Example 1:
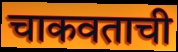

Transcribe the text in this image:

चाकवताची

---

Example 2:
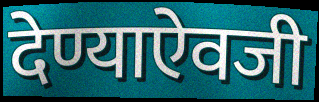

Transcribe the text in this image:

देण्याऐवजी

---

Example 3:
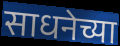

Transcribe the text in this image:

साधनेच्या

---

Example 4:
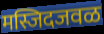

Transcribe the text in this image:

मस्जिदजवळ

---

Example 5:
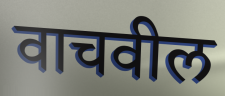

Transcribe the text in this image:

वाचवील